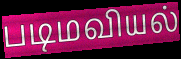
படிமவியல்